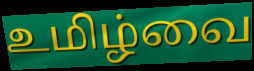
உமிழ்வை